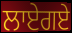
ਲਾਏਗਏ